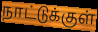
நாட்டுக்குள்